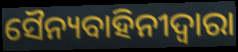
ସୈନ୍ୟବାହିନୀଦ୍ୱାରା